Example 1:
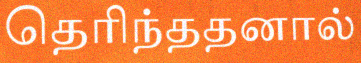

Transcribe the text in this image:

தெரிந்ததனால்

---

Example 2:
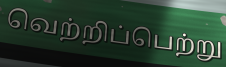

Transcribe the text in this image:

வெற்றிப்பெற்று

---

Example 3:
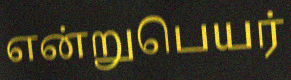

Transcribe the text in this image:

என்றுபெயர்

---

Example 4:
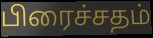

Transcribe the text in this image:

பிரைச்சதம்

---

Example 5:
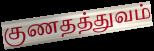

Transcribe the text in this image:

குணதத்துவம்